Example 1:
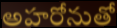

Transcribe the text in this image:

అహరోనుతో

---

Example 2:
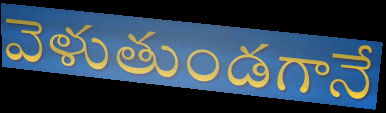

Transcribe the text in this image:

వెళుతుండగానే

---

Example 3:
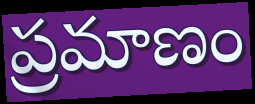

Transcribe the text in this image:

ప్రమాణం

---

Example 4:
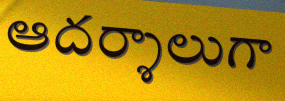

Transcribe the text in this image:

ఆదర్శాలుగా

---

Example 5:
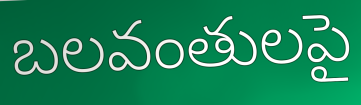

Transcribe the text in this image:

బలవంతులపై